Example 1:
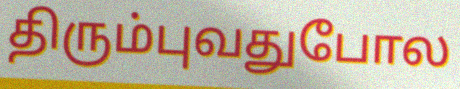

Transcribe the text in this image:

திரும்புவதுபோல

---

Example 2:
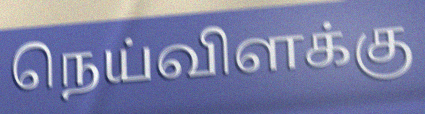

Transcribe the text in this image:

நெய்விளக்கு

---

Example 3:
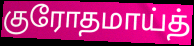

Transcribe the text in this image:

குரோதமாய்த்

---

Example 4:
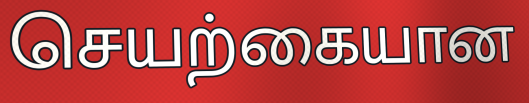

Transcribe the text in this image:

செயற்கையான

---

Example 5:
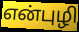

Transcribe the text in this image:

என்புழி